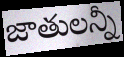
జాతులన్నీ